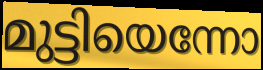
മുട്ടിയെന്നോ